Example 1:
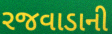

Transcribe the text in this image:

રજવાડાની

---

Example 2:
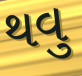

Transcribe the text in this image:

થવુ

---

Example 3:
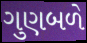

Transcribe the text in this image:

ગુણબળે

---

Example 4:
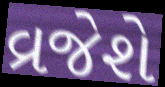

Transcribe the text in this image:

વ્રજેશે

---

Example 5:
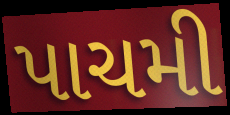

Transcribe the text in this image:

પાચમી